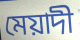
মেয়াদী